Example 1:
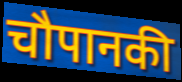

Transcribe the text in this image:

चौपानकी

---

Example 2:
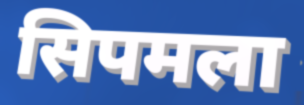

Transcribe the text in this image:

सिपमला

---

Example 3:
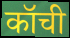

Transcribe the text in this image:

कॉची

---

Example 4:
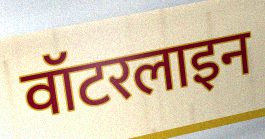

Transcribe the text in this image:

वॉटरलाइन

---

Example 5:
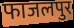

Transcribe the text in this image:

फाजलपुर